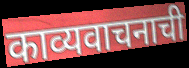
काव्यवाचनाची